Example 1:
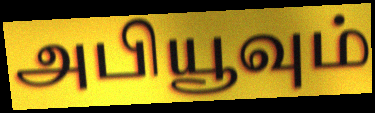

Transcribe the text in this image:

அபியூவும்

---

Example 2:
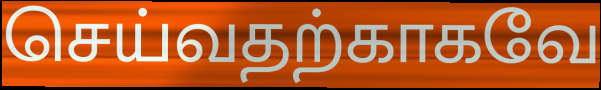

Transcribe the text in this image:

செய்வதற்காகவே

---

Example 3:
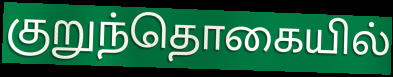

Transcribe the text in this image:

குறுந்தொகையில்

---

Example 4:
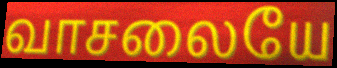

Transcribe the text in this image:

வாசலையே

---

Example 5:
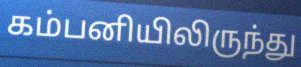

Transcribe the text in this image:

கம்பனியிலிருந்து